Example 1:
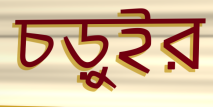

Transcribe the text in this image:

চড়ুইর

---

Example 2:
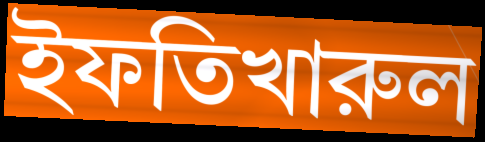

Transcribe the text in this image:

ইফতিখারুল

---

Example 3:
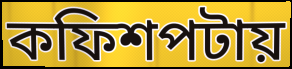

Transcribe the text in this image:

কফিশপটায়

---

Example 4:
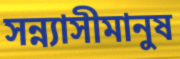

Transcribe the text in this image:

সন্ন্যাসীমানুষ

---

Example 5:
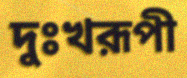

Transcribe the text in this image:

দুঃখরূপী